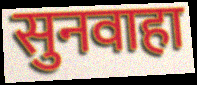
सुनवाहा